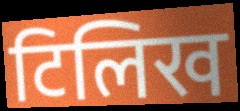
टिलिख